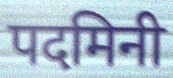
पदमिनी